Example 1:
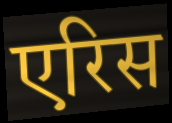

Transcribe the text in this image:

एरिस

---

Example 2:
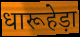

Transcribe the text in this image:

धारूहेड़ा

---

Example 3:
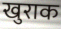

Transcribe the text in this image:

खुराक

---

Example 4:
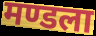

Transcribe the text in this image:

मण्डला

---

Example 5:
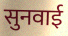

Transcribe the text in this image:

सुनवाई